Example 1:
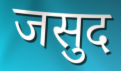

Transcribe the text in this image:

जसुद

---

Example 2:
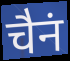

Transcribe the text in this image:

चैनं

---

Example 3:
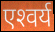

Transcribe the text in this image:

एश्‍वर्य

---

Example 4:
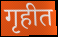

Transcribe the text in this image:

गृहीत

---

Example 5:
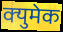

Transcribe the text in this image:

क्युमेक